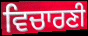
ਵਿਚਾਰਣੀ